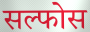
सल्फोस